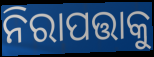
ନିରାପତ୍ତାକୁ